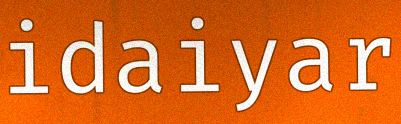
idaiyar